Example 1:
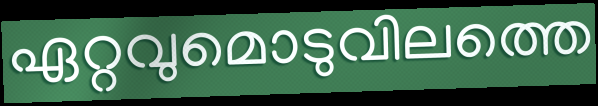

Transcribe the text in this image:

ഏറ്റവുമൊടുവിലത്തെ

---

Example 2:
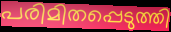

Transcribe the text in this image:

പരിമിതപ്പെടുത്തി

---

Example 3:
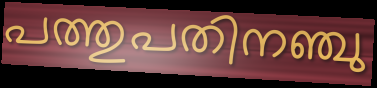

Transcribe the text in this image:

പത്തുപതിനഞ്ചു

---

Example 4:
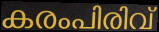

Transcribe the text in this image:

കരംപിരിവ്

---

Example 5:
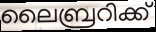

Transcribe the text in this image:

ലൈബ്രറിക്ക്